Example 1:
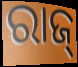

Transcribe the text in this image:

ରାଜ୍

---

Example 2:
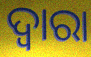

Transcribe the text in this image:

ଦ୍ଵାରା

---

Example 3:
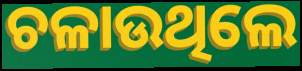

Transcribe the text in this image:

ଚଳାଉଥିଲେ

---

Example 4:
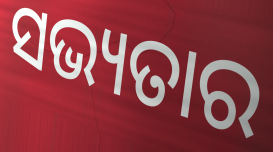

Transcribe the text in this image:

ସଭ୍ୟତାର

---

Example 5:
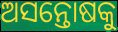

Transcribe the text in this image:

ଅସନ୍ତୋଷକୁ